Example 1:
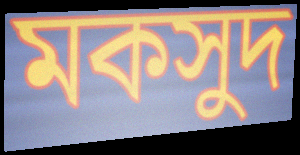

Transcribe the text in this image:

মকসুদ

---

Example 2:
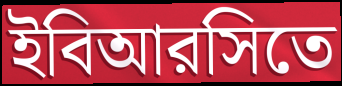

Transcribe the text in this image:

ইবিআরসিতে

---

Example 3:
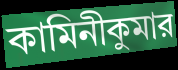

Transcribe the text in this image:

কামিনীকুমার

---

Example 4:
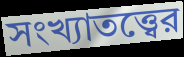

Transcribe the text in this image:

সংখ্যাতত্ত্বের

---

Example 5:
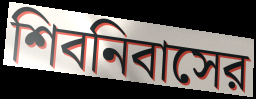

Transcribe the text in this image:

শিবনিবাসের